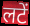
लटें